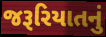
જરૂરિયાતનું